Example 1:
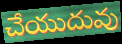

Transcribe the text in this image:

చేయుదువు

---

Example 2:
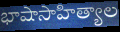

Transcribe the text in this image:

భాషాసాహిత్యాల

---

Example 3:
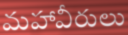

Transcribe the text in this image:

మహావీరులు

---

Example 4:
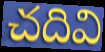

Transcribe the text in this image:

చదివి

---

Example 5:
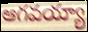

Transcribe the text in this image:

ఆగవయ్యా